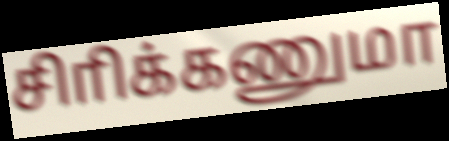
சிரிக்கணுமா